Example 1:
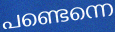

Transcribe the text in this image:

പണ്ടെന്നെ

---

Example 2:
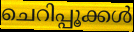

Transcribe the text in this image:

ചെറിപ്പൂക്കൾ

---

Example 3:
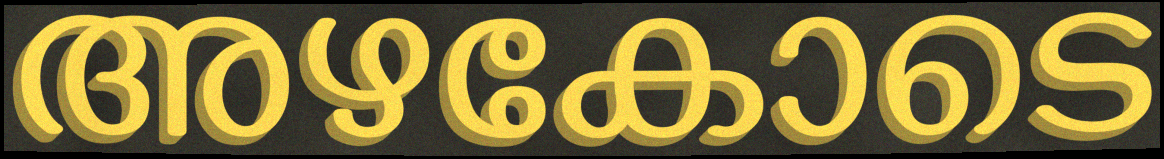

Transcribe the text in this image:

അഴകോടെ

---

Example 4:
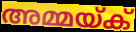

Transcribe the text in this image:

അമ്മയ്ക്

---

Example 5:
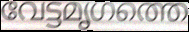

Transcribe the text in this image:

വേട്ടമൃഗത്തെ